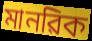
মানৱিক